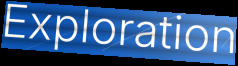
Exploration